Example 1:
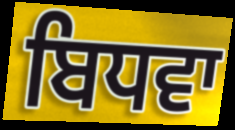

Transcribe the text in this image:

ਬਿਧਵਾ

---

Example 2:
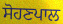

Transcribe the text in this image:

ਸੋਹਣਪਾਲ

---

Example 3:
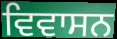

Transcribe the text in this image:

ਵਿਵਾਸਨ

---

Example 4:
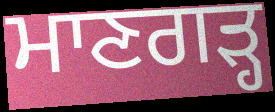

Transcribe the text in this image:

ਮਾਣਗੜ੍ਹ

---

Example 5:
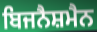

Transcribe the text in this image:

ਬਿਜਨੈਸ਼ਮੈਨ